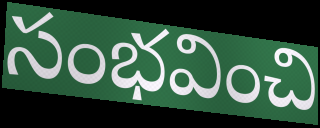
సంభవించి